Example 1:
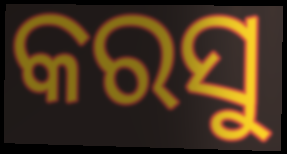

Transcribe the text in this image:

କରସୁ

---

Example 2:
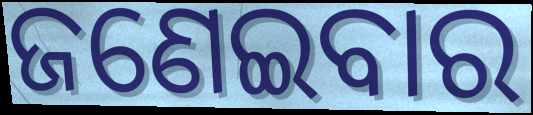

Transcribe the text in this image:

ଜଣେଇବାର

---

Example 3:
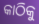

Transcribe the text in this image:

କାଠିକୁ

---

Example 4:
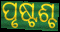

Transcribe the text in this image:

ପୃଷ୍ଟଶ୍ଚ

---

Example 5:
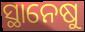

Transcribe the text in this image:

ସ୍ଥାନେଷୁ